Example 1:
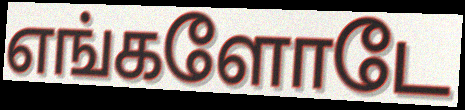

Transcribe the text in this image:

எங்களோடே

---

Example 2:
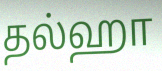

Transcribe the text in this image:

தல்ஹா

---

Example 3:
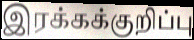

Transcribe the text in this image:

இரக்கக்குறிப்பு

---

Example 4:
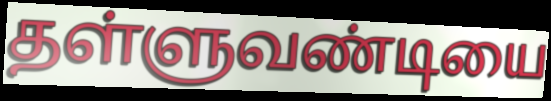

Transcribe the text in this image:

தள்ளுவண்டியை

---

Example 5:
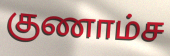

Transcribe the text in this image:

குணாம்ச